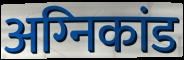
अग्‍निकांड